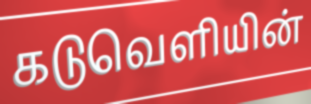
கடுவெளியின்